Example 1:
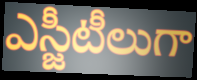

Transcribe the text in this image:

ఎస్జీటీలుగా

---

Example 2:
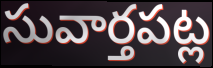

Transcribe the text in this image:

సువార్తపట్ల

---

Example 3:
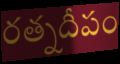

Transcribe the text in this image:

రత్నదీపం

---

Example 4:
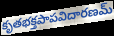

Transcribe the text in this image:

కృతభక్తపాపవిదారణమ్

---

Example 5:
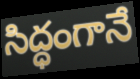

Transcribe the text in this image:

సిద్ధంగానే